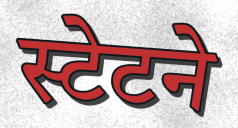
स्टेटने